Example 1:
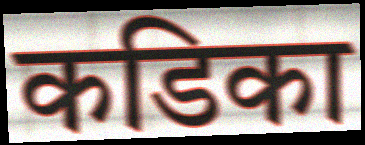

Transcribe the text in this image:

कडिका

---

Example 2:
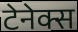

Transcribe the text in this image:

टेनेक्स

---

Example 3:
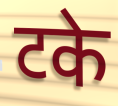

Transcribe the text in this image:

टके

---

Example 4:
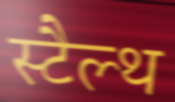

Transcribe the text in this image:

स्टैल्थ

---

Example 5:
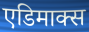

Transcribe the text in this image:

एडिमाक्स